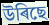
উৰিছে